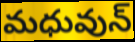
మధువున్